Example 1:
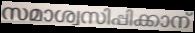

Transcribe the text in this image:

സമാശ്വസിപ്പിക്കാന്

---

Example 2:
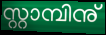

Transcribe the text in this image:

സ്റ്റാമ്പിനു്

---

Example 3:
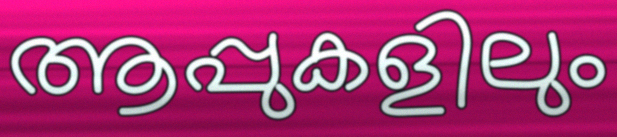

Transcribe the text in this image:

ആപ്പുകളിലും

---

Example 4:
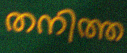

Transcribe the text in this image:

തനിത്ത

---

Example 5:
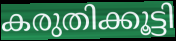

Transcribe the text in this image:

കരുതിക്കൂട്ടി